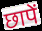
छापें